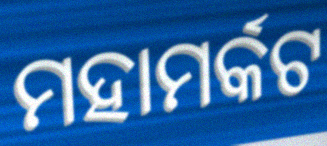
ମହାମର୍କଟ